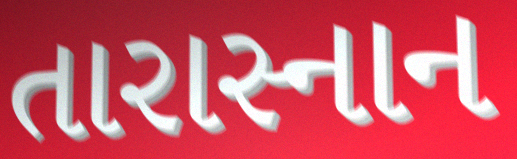
તારાસ્નાન